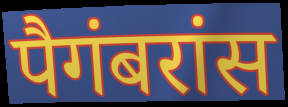
पैगंबरांस